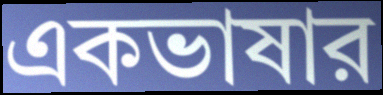
একভাষার